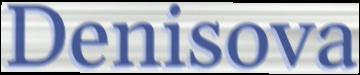
Denisova